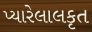
પ્યારેલાલકૃત